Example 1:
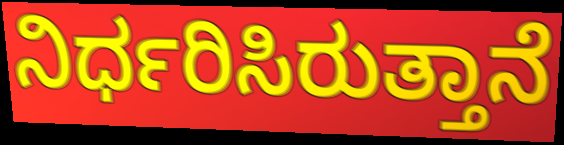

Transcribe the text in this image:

ನಿರ್ಧರಿಸಿರುತ್ತಾನೆ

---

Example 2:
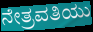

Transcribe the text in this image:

ನೇತ್ರವತಿಯು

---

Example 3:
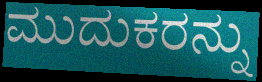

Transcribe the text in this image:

ಮುದುಕರನ್ನು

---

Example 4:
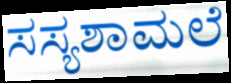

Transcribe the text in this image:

ಸಸ್ಯಶಾಮಲೆ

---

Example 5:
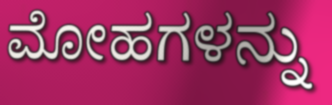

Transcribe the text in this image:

ಮೋಹಗಳನ್ನು